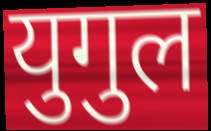
युगुल